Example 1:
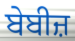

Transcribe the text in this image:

ਬੇਬੀਜ਼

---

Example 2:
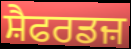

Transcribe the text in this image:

ਸ਼ੈਫਰਡਜ਼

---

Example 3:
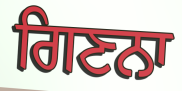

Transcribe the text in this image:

ਗਿਣਨਾ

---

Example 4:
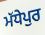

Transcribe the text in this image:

ਮੱਧੇਪੁਰ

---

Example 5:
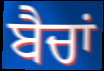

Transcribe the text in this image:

ਬੈਚਾਂ